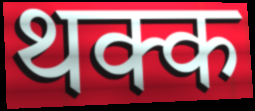
थक्क